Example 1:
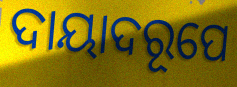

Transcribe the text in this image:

ଦାୟାଦରୂପେ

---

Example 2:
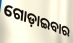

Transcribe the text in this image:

ଗୋଡ଼ାଇବାର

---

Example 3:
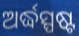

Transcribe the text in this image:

ଅର୍ଦ୍ଧସ୍ପଷ୍ଟ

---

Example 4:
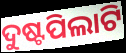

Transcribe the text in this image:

ଦୁଷ୍ଟପିଲାଟି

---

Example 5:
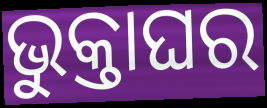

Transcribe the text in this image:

ଭୁକ୍ତାଘର